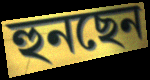
হুনছেন